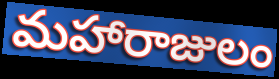
మహారాజులం